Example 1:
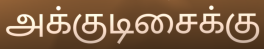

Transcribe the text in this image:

அக்குடிசைக்கு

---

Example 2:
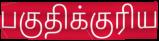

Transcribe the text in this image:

பகுதிக்குரிய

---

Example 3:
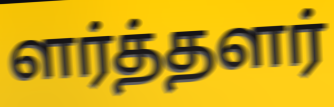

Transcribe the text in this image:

ளர்த்தளர்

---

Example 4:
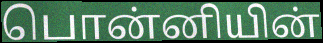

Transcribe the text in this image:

பொன்னியின்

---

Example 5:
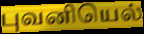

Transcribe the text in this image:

புவனியெல்